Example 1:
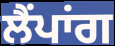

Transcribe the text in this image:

ਲੈਂਪਾਂਗ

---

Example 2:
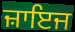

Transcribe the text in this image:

ਜ਼ਾਇਜ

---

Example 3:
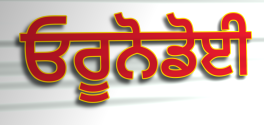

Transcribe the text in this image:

ਓਰੂਨੋਡੋਈ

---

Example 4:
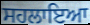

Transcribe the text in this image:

ਸਹਲਾਇਆ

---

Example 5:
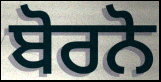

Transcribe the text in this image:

ਬੋਰਨੋ